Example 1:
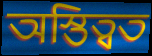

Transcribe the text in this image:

অস্তিত্বত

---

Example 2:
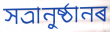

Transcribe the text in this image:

সত্ৰানুষ্ঠানৰ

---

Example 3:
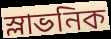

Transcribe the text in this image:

স্লাভনিক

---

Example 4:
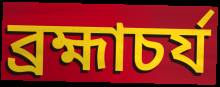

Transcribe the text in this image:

ব্ৰহ্মাচৰ্য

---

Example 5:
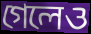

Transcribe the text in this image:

গেলেও